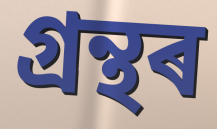
গ্ৰন্থৰ